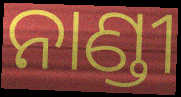
ନାଣ୍ଡୀ